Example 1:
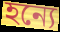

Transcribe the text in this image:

হন্যে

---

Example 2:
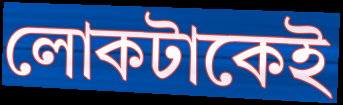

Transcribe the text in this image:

লোকটাকেই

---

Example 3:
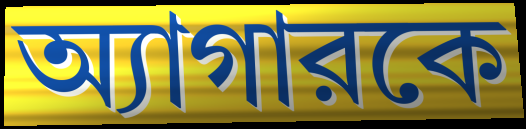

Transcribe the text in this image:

অ্যাগারকে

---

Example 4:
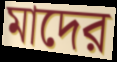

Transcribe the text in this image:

মাদের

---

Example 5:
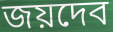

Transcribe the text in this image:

জয়দেব